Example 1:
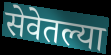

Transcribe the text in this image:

सेवेतल्या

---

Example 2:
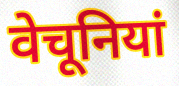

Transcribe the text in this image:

वेचूनियां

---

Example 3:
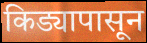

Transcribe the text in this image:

किड्यापासून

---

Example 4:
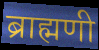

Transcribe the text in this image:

ब्राह्मणी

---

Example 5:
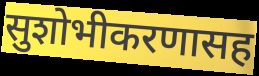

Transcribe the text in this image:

सुशोभीकरणासह